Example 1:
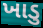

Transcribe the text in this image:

ખાડુ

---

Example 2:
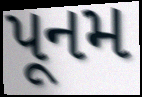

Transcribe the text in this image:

પૂનમ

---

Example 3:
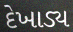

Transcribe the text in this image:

દેખાડ્ય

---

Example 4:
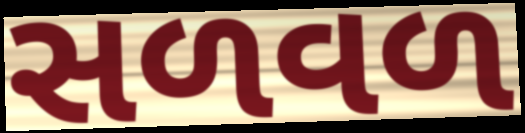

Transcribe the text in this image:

સળવળ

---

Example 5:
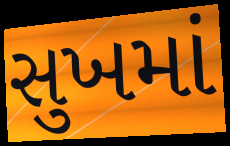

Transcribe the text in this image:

સુખમાં